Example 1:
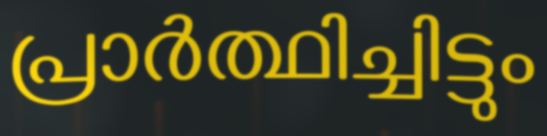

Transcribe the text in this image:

പ്രാർത്ഥിച്ചിട്ടും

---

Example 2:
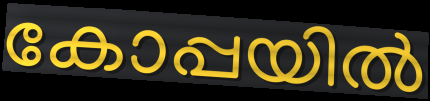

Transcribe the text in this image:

കോപ്പയിൽ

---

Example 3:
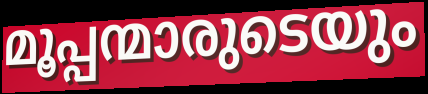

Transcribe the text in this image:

മൂപ്പന്മാരുടെയും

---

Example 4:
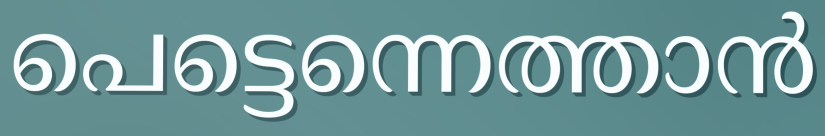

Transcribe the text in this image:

പെട്ടെന്നെത്താൻ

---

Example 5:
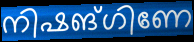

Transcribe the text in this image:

നിഷങ്ഗിണേ